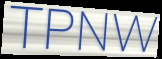
TPNW